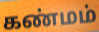
கண்மம்